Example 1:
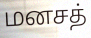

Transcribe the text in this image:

மனசத்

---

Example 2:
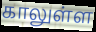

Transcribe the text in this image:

காலுள்ள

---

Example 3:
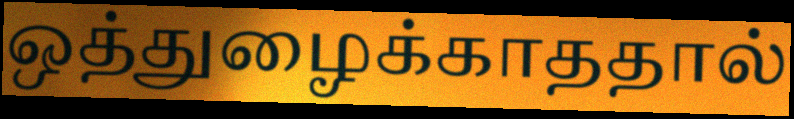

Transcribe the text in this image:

ஒத்துழைக்காததால்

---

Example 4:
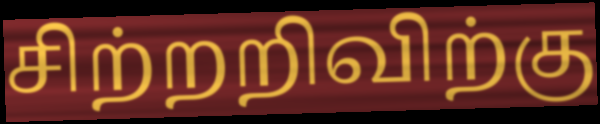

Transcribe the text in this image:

சிற்றறிவிற்கு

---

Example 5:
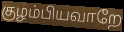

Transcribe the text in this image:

குழம்பியவாறே